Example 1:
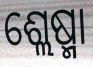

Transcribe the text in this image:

ଶ୍ଲେଷ୍ମା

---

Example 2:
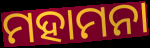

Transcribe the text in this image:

ମହାମନା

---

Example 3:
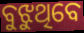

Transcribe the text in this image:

ବୁଝୁଥିବେ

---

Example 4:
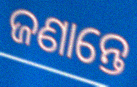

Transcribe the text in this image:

ଜଣାନ୍ତେ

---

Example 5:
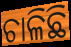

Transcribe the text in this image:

ଚାଳିଛି